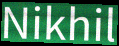
Nikhil